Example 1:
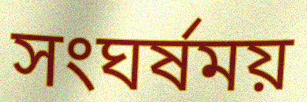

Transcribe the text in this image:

সংঘর্ষময়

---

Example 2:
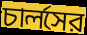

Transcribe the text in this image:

চার্লসের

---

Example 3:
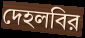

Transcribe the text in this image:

দেহলবির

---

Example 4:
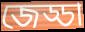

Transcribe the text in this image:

জেড্ডা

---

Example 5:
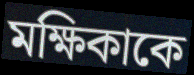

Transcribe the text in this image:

মক্ষিকাকে